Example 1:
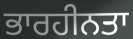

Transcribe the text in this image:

ਭਾਰਹੀਨਤਾ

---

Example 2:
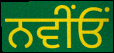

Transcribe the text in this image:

ਨਵੀਂਓਂ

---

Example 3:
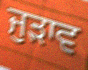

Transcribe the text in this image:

ਜੁੜਾਵ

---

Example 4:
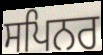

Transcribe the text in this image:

ਸਪਿਨਰ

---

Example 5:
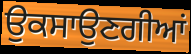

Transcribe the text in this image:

ਉਕਸਾਉਣਗੀਆਂ